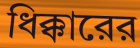
ধিক্কারের